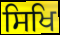
ਸਿਖਿ